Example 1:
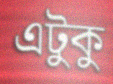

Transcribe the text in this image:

এটুকু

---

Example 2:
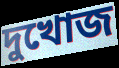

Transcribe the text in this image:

দুখোজ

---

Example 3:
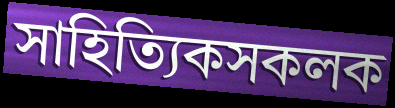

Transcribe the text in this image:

সাহিত্যিকসকলক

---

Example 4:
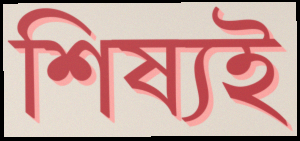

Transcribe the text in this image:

শিষ্যই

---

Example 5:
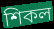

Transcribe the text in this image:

শিকল